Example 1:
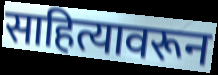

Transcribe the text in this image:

साहित्यावरून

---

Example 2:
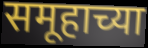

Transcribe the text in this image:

समूहाच्या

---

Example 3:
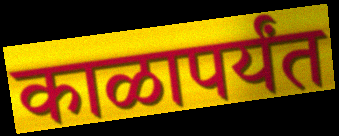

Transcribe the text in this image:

काळापर्यंत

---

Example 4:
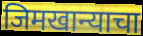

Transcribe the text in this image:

जिमखान्याचा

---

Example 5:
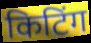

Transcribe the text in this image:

किटिंग